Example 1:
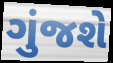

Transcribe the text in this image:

ગુંજશે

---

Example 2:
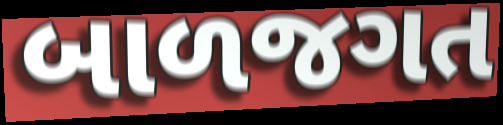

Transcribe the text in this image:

બાળજગત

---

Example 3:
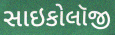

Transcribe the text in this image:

સાઇકોલૉજી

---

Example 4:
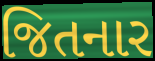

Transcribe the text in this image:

જિતનાર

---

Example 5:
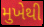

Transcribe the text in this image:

મુખેથી